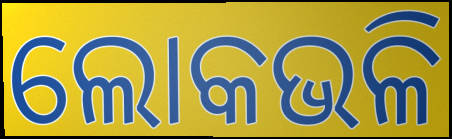
ଲୋକଭଳି